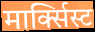
मार्क्सिस्ट